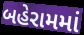
બહેરામમાં